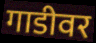
गाडीवर